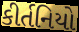
કીર્તનિયો